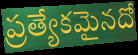
ప్రత్యేకమైనదో